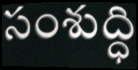
సంశుద్ధి